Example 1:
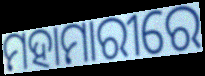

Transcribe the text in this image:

ମହାମାରୀରେ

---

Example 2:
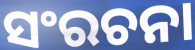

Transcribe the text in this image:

ସଂରଚନା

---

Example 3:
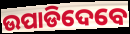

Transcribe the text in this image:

ଉପାଡିଦେବେ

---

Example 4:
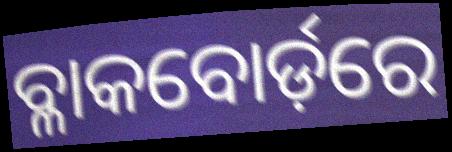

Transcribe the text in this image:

ବ୍ଳାକବୋର୍ଡ଼ରେ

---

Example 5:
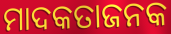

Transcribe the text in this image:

ମାଦକତାଜନକ